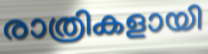
രാത്രികളായി